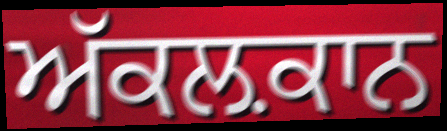
ਅੱਕਲ਼ਕਾਨ